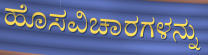
ಹೊಸವಿಚಾರಗಳನ್ನು